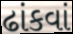
ઢાંકવાં